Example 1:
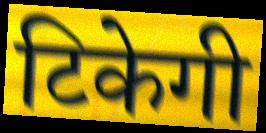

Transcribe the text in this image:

टिकेगी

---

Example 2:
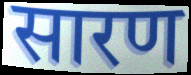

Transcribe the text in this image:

सारण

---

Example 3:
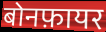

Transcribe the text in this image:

बोनफ़ायर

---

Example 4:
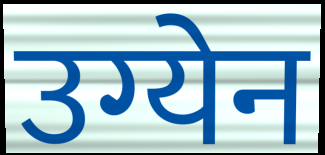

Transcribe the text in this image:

उग्येन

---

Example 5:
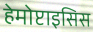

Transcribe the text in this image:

हेमोप्टाइसिस